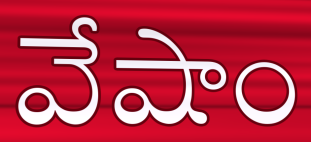
వేషాం